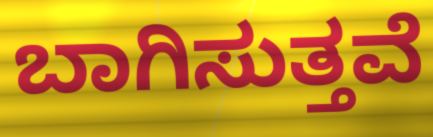
ಬಾಗಿಸುತ್ತವೆ